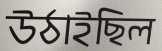
উঠাইছিল